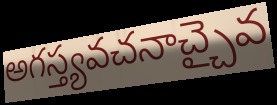
అగస్త్యవచనాచ్చైవ